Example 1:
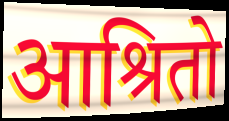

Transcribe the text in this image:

आश्रितो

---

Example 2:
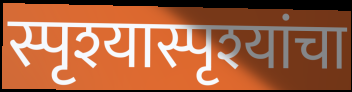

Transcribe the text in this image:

स्पृश्यास्पृश्यांचा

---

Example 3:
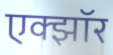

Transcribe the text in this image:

एक्झॉर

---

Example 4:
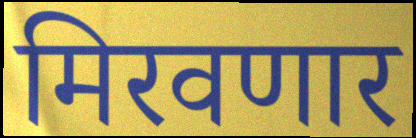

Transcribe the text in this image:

मिरवणार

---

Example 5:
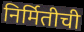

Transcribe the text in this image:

निर्मितीची